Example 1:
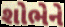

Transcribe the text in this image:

શોભેને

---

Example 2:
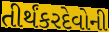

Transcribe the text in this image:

તીર્થંકરદેવોની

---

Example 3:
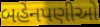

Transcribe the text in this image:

બહેનપણીઓ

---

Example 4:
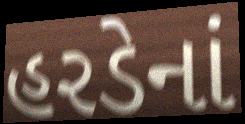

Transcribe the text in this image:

હરડેનાં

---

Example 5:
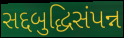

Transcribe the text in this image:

સદ્દબુદ્ધિસંપન્ન